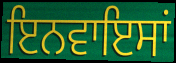
ਇਨਵਾਇਸਾਂ